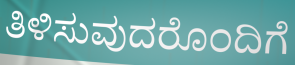
ತಿಳಿಸುವುದರೊಂದಿಗೆ